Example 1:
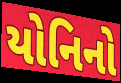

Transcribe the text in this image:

યોનિનો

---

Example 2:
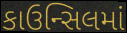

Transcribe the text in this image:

કાઉન્સિલમાં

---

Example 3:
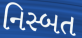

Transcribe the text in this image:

નિસ્બત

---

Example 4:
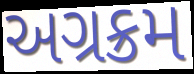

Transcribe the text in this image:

અગ્રક્રમ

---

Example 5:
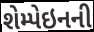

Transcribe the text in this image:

શેમ્પેઇનની